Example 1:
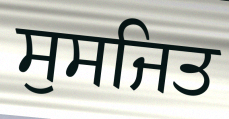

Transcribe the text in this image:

ਸੁਸਜਿਤ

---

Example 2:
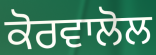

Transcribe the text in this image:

ਕੋਰਵਾਲੋਲ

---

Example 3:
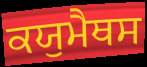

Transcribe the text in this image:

ਕਯੁਮੈਥਸ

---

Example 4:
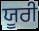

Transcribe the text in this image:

ਯੂਰੀ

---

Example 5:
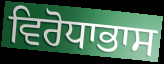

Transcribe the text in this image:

ਵਿਰੋਧਾਭਾਸ